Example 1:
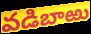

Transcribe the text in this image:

వడిబాఱు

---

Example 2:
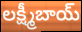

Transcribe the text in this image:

లక్ష్మీబాయ్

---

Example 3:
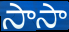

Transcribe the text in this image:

సాసా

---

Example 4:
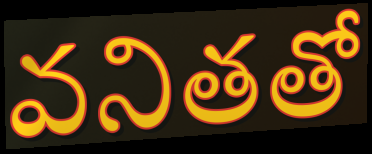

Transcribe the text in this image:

వనితతో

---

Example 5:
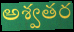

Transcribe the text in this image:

అశ్వతర